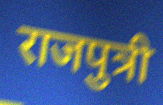
राजपुत्री